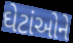
ઘેટાંઓને